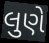
લુણે